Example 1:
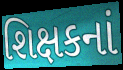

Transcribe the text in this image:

શિક્ષકનાં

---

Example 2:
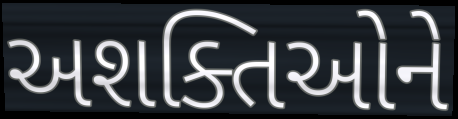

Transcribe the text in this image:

અશક્તિઓને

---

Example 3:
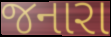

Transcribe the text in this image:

જનારા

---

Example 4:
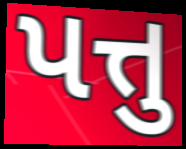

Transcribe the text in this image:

પત્તુ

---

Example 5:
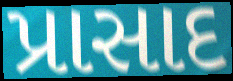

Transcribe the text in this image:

પ્રાસાદ